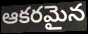
ఆకరమైన